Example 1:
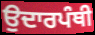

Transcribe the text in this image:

ਉਦਾਰਪੰਥੀ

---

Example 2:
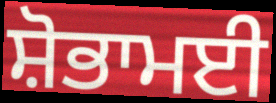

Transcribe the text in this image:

ਸ਼ੋਭਾਮਈ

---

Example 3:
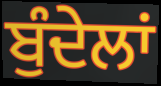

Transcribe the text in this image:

ਬੁੰਦੇਲਾਂ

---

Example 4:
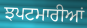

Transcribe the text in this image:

ਝਪਟਮਾਰੀਆਂ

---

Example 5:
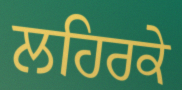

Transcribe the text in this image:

ਲਹਿਰਕੇ